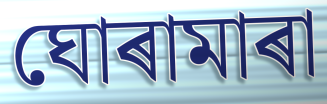
ঘোৰামাৰা